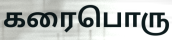
கரைபொரு